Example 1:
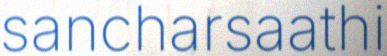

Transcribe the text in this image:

sancharsaathi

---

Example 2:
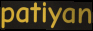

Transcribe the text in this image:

patiyan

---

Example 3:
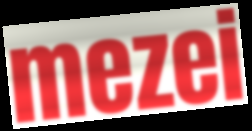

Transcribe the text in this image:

mezei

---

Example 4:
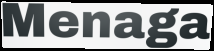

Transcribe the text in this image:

Menaga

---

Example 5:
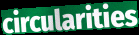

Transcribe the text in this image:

circularities